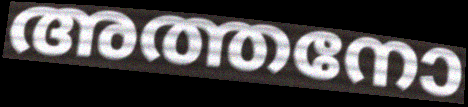
അത്തനോ